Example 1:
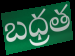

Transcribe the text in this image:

బధ్రత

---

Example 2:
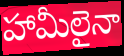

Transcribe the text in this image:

హామీలైనా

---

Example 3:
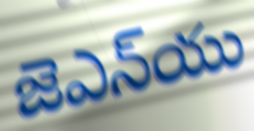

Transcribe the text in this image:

జెఎన్‌యు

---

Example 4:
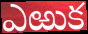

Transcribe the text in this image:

ఎఱుక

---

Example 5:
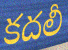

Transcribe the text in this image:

కదలీ